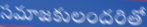
సమాజకులందరితో